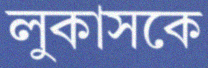
লুকাসকে